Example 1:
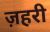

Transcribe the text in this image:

ज़हरी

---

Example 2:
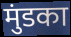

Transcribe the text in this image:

मुंडका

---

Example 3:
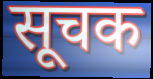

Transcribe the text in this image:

सूचक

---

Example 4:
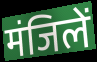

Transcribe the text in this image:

मंजिलें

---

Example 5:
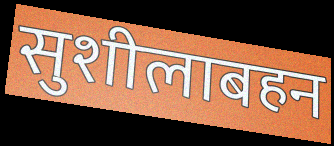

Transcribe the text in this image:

सुशीलाबहन